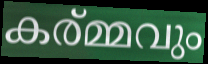
കര്മ്മവും